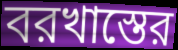
বরখাস্তের